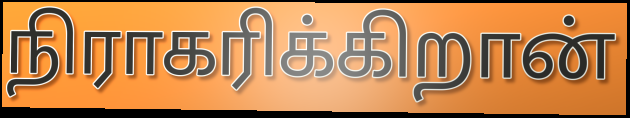
நிராகரிக்கிறான்